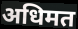
अधिमत